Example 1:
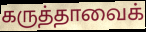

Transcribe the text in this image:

கருத்தாவைக்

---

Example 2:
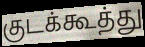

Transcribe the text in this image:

குடக்கூத்து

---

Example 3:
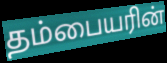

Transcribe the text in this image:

தம்பையரின்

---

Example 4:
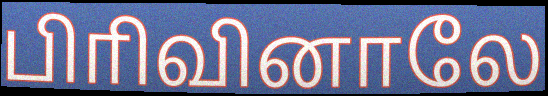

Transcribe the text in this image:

பிரிவினாலே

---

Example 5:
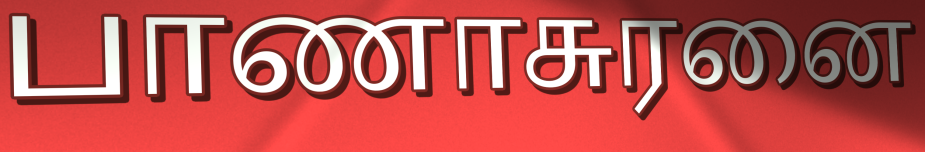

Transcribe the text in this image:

பாணாசுரனை